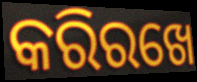
କରିରଖେ